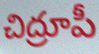
చిద్రూపీ